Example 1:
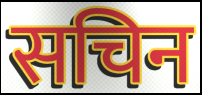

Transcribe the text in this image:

सचिन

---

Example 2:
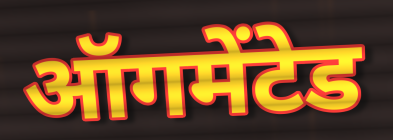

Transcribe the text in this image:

ऑगमेंटेड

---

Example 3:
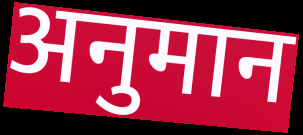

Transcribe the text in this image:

अनुमान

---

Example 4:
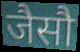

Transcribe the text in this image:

जैसौ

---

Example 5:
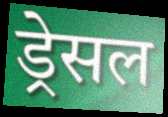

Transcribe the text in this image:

ड्रेसल